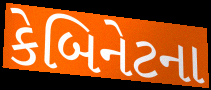
કેબિનેટના